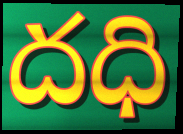
దధి